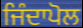
ਜਿੰਦਾਪੋਲ